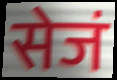
सेजं